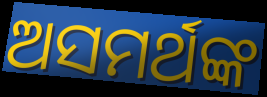
ଅସମର୍ଥଙ୍କ